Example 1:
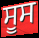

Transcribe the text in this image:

ਸੂਸ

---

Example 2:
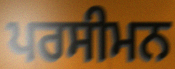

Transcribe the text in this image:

ਪਰਸੀਮਨ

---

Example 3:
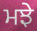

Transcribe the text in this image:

ਮਝੇ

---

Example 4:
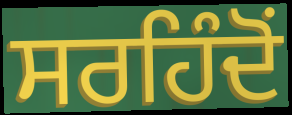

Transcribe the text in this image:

ਸਰਹਿੰਦੋਂ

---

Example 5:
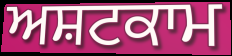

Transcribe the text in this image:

ਅਸ਼ਟਕਾਮ